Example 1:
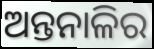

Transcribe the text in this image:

ଅନ୍ତନାଳିର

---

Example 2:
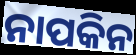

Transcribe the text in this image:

ନାପକିନ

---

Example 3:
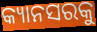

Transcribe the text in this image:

କ୍ୟାନସରକୁ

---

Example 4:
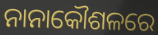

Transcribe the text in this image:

ନାନାକୌଶଳରେ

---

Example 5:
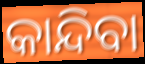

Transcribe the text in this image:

କାନ୍ଦିବା